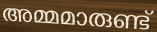
അമ്മമാരുണ്ട്